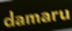
damaru